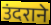
उंदराने